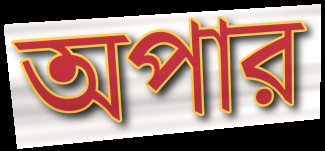
অপার